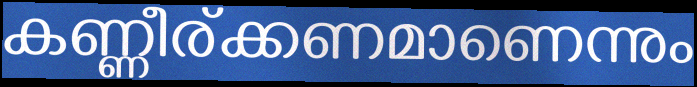
കണ്ണീര്ക്കണമാണെന്നും